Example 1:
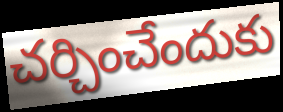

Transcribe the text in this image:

చర్చించేందుకు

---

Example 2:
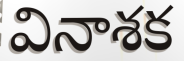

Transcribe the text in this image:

వినాశక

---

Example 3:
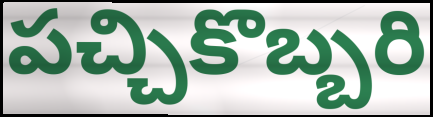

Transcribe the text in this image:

పచ్చికొబ్బరి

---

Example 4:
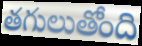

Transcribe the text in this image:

తగులుతోంది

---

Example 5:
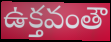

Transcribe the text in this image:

ఉక్తవంతౌ